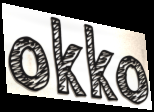
okko